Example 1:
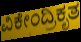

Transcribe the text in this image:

ವಿಕೇಂದ್ರಿಕೃತ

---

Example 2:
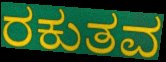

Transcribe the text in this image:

ರಕುತವ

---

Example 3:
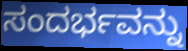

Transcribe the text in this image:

ಸಂದರ್ಭವನ್ನು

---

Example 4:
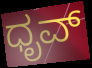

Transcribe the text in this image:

ಧೃವ್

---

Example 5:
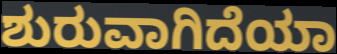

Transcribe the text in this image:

ಶುರುವಾಗಿದೆಯಾ